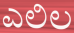
ಎಲಿಲ